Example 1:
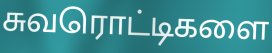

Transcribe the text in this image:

சுவரொட்டிகளை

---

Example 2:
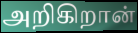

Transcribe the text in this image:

அறிகிறான்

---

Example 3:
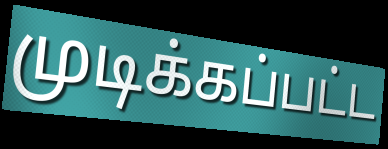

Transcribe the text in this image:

முடிக்கப்பட்ட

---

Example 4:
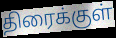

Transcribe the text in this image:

திரைக்குள்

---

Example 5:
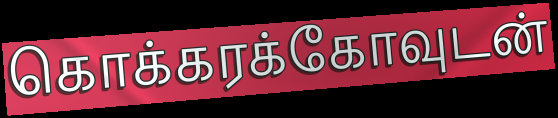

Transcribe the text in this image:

கொக்கரக்கோவுடன்